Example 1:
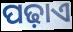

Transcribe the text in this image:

ପଢ଼ାଏ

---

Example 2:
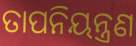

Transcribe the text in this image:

ତାପନିୟନ୍ତ୍ରଣ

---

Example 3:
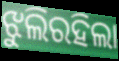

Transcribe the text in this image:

ଝୁଲିରହିଲା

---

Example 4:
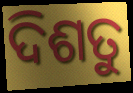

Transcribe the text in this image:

ଦିଶତୁ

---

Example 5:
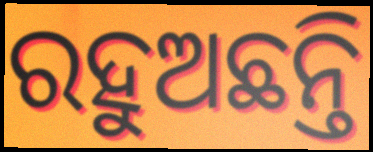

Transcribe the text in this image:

ରହୁଅଛନ୍ତି